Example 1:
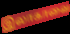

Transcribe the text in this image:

இலாகாவை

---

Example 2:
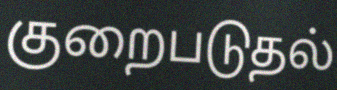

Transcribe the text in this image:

குறைபடுதல்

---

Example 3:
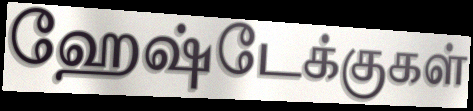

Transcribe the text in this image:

ஹேஷ்டேக்குகள்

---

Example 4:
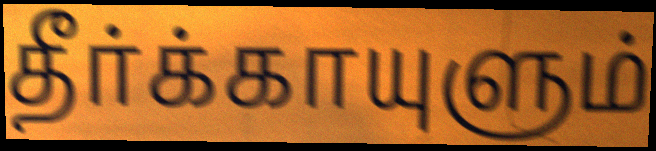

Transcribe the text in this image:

தீர்க்காயுளும்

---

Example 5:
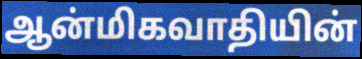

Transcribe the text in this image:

ஆன்மிகவாதியின்